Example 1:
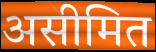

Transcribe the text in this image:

असीमित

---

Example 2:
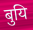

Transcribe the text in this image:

बुयि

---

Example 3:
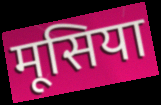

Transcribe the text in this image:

मूसिया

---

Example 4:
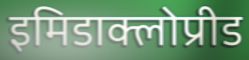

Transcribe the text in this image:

इमिडाक्लोप्रीड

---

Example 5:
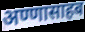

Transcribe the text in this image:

अण्णासाहब